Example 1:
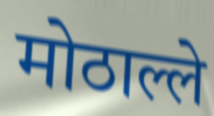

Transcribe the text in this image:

मोठाल्ले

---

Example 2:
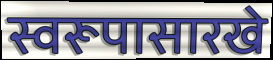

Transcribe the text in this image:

स्वरूपासारखे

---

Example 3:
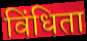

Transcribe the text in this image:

विंधिता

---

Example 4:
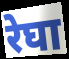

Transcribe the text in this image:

रेघा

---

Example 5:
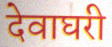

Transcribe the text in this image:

देवाघरी